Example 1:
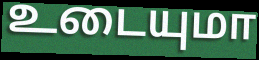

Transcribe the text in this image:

உடையுமா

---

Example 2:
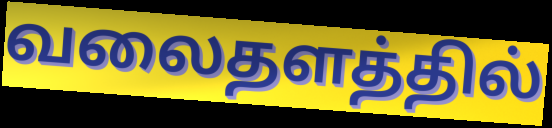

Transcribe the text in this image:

வலைதளத்தில்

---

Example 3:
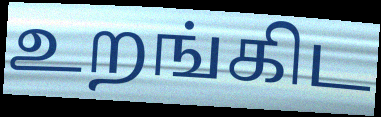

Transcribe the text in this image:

உறங்கிட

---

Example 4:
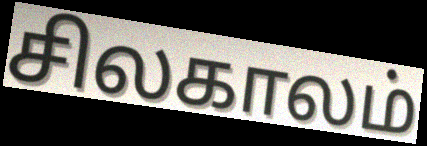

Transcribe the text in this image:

சிலகாலம்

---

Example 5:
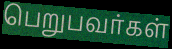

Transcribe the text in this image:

பெறுபவர்கள்